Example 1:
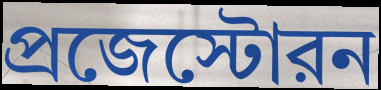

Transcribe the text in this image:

প্রজেস্টোরন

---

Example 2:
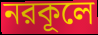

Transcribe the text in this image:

নরকূলে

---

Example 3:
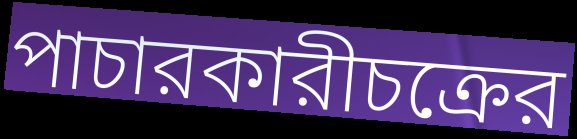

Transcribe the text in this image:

পাচারকারীচক্রের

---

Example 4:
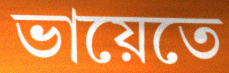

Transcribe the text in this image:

ভায়েতে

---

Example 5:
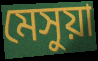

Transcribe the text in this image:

মেসুয়া